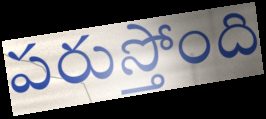
పరుస్తోంది